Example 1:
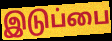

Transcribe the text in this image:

இடுப்பை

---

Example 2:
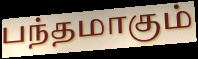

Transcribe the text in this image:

பந்தமாகும்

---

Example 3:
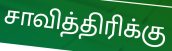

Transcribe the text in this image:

சாவித்திரிக்கு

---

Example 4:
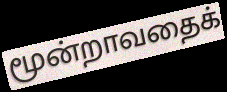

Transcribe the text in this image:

மூன்றாவதைக்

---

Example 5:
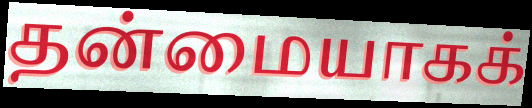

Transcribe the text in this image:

தன்மையாகக்